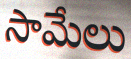
సామేలు